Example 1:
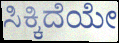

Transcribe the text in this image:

ಸಿಕ್ಕಿದೆಯೇ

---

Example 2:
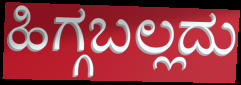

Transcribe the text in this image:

ಹಿಗ್ಗಬಲ್ಲದು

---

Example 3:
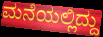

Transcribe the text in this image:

ಮನೆಯಲ್ಲಿದ್ದು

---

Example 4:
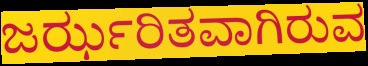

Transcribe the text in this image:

ಜರ್ಝರಿತವಾಗಿರುವ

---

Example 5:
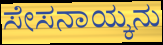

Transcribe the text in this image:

ಸೇಸನಾಯ್ಕನು